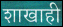
शाखाही